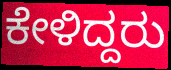
ಕೇಳಿದ್ದರು